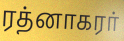
ரத்னாகரர்